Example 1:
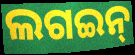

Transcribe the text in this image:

ଲଗଇନ୍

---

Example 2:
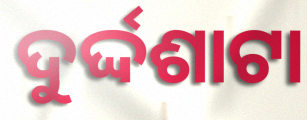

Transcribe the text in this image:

ଦୁର୍ଦ୍ଦଶାଟା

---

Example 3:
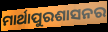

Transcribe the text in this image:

ମାର୍ଥାପୁରଶାସନର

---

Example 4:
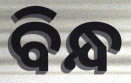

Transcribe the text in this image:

ବିନ୍ଧ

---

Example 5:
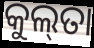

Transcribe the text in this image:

କୁଲ୍‌ତା